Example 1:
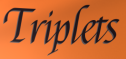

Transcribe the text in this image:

Triplets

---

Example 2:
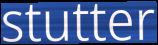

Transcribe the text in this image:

stutter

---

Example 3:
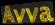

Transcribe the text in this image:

Avva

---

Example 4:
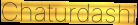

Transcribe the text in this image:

Chaturdashi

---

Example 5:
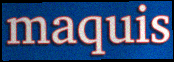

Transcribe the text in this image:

maquis